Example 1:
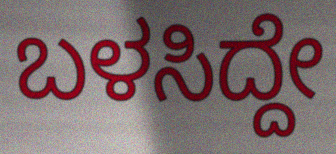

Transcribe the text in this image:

ಬಳಸಿದ್ದೇ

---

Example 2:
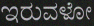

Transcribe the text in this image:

ಇರುವಳೋ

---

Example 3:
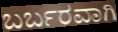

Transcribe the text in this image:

ಬರ್ಬರವಾಗಿ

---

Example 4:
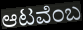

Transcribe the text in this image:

ಆಟವೆಂಬ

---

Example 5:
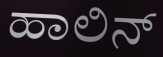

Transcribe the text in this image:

ಹಾಲಿನ್